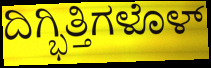
ದಿಗ್ಭಿತ್ತಿಗಳೊಳ್